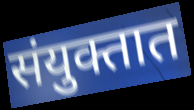
संयुक्तात